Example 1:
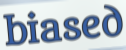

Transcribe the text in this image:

biased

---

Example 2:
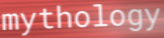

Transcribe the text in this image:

mythology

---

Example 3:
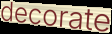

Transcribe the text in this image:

decorate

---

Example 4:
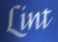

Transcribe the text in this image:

Lint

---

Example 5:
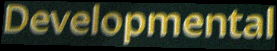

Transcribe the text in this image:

Developmental